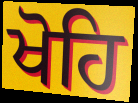
ਖੋਹਿ